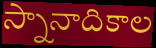
స్నానాదికాల